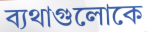
ব্যথাগুলোকে